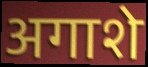
अगाशे